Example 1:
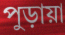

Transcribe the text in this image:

পুড়ায়া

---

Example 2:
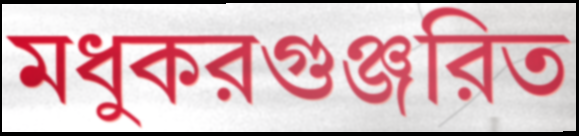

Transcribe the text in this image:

মধুকরগুঞ্জরিত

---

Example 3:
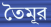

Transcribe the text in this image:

তৈমূর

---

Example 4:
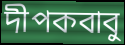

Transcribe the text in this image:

দীপকবাবু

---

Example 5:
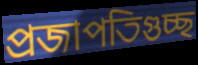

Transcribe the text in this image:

প্রজাপতিগুচ্ছ